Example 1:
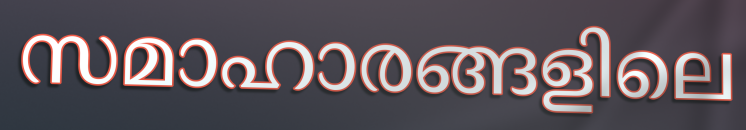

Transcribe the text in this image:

സമാഹാരങ്ങളിലെ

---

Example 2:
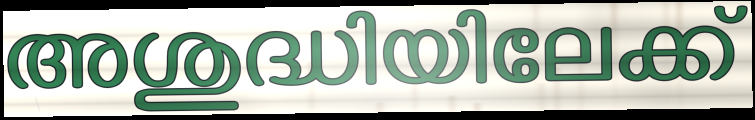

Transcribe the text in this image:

അശുദ്ധിയിലേക്ക്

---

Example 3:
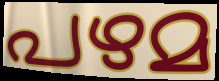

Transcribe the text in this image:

പഴമ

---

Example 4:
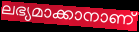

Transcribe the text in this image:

ലഭ്യമാക്കാനാണ്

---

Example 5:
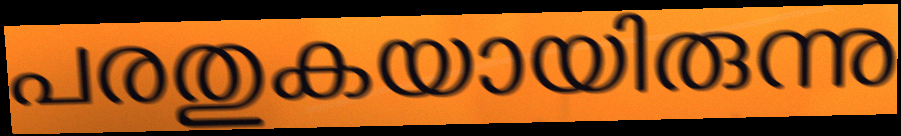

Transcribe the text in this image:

പരതുകയായിരുന്നു